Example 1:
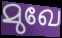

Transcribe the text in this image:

മുഖേ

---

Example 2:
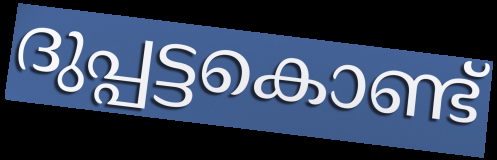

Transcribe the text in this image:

ദുപ്പട്ടകൊണ്ട്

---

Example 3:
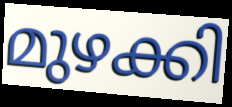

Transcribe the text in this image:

മുഴക്കി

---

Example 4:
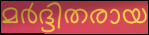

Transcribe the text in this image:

മർദ്ദിതരായ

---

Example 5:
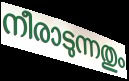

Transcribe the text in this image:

നീരാടുന്നതും